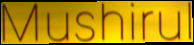
Mushirul